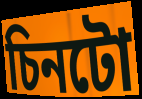
চিনটো